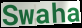
Swaha